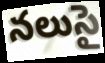
నలుసై